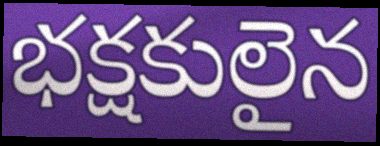
భక్షకులైన